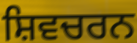
ਸ਼ਿਵਚਰਨ